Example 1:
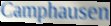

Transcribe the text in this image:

Camphausen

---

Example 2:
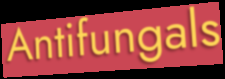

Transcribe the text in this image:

Antifungals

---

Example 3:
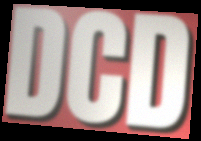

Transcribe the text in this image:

DCD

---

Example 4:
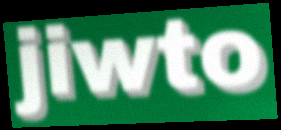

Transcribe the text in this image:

jiwto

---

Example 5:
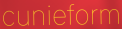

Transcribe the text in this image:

cunieform